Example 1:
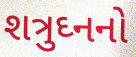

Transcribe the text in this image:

શત્રુઘ્નનો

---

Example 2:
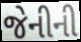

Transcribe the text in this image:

જેનીની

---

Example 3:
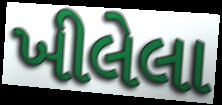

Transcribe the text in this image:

ખીલેલા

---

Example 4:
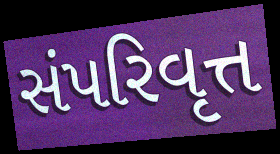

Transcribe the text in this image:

સંપરિવૃત્ત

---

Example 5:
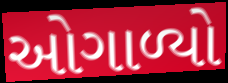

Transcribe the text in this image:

ઓગાળ્યો